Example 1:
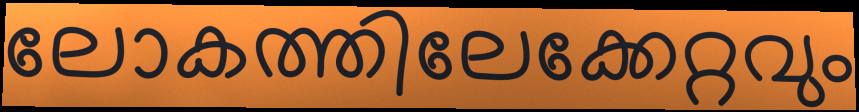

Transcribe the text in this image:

ലോകത്തിലേക്കേറ്റവും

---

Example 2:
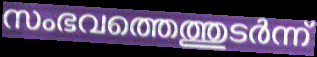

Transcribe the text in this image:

സംഭവത്തെത്തുടർന്ന്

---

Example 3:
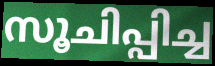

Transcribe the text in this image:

സൂചിപ്പിച്ച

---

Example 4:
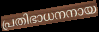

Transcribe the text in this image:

പ്രതിഭാധനനായ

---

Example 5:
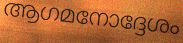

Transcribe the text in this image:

ആഗമനോദ്ദേശം